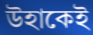
উহাকেই